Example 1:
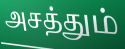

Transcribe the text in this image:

அசத்தும்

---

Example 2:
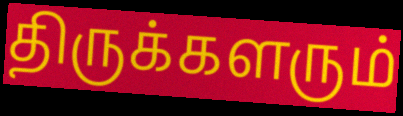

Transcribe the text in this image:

திருக்களரும்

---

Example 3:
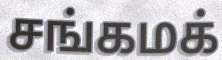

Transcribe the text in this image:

சங்கமக்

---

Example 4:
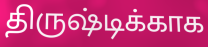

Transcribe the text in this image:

திருஷ்டிக்காக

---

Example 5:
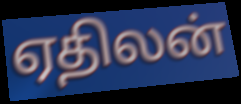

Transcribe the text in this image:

ஏதிலன்